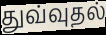
துவ்வுதல்